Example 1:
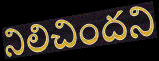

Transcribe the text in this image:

నిలిచిందని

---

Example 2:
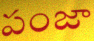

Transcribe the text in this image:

పంజా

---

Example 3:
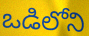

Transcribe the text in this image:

ఒడిలోని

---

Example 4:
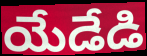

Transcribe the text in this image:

యేడేడి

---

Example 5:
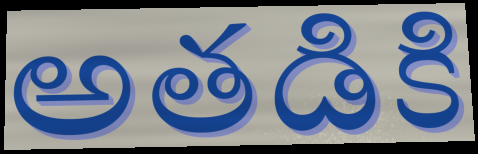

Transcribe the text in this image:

అతడికి